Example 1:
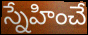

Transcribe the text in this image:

స్నేహించే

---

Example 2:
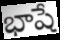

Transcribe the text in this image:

భాషే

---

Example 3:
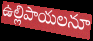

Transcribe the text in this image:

ఉల్లిపాయలనూ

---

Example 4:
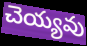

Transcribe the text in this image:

చెయ్యవు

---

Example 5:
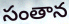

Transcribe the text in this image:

సంతాన